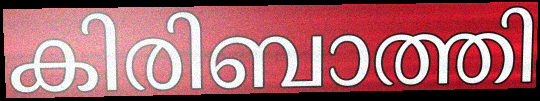
കിരിബാത്തി